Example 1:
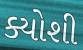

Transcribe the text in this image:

ક્યોશી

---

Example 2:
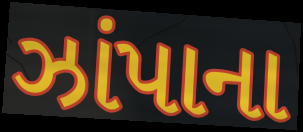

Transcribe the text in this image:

ઝાંપાના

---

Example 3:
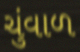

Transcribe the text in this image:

ચુંવાળ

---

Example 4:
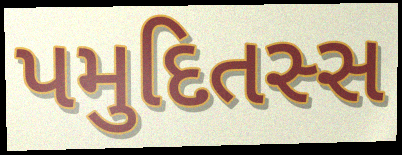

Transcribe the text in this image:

પમુદિતસ્સ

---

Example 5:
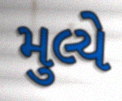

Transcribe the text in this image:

મુલ્યે